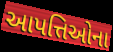
આપત્તિઓના